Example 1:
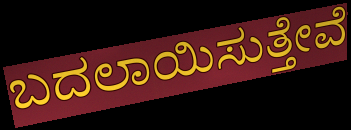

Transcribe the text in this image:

ಬದಲಾಯಿಸುತ್ತೇವೆ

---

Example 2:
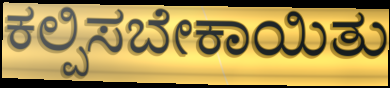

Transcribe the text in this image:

ಕಲ್ಪಿಸಬೇಕಾಯಿತು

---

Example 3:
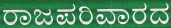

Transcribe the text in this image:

ರಾಜಪರಿವಾರದ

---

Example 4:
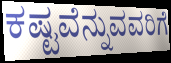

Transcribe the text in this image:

ಕಷ್ಟವೆನ್ನುವವರಿಗೆ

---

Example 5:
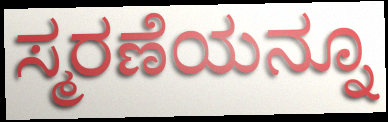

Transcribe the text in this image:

ಸ್ಮರಣೆಯನ್ನೂ